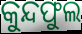
କୁନ୍ଦଫୁଲ